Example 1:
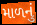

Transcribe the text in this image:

માળનું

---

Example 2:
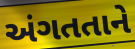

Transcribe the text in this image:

અંગતતાને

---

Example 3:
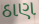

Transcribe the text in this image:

ઠાણ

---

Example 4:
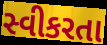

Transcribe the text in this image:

સ્વીકરતા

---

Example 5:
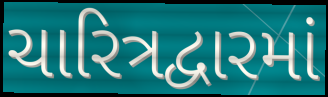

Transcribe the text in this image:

ચારિત્રદ્વારમાં